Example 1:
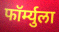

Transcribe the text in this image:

फॉर्म्युला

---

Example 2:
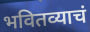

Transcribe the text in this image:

भवितव्याचं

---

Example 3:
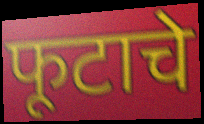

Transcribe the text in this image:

फूटाचे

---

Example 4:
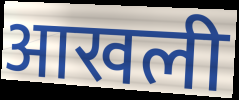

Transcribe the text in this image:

आखली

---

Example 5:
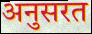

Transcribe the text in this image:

अनुसरत